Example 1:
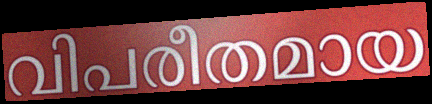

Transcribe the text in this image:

വിപരീതമായ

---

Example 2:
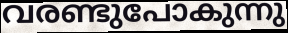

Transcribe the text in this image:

വരണ്ടുപോകുന്നു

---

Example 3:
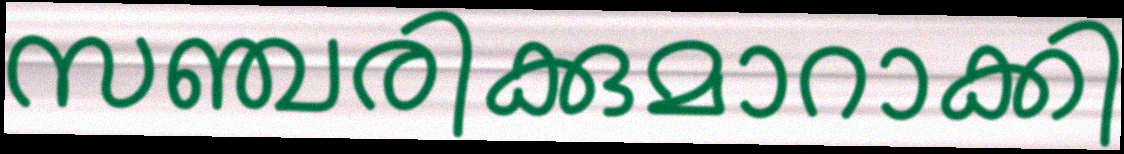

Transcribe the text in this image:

സഞ്ചരിക്കുമാറാക്കി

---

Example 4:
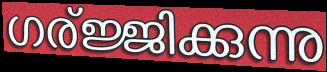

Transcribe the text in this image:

ഗര്ജ്ജിക്കുന്നു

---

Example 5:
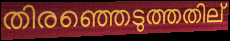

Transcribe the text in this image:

തിരഞ്ഞെടുത്തതില്